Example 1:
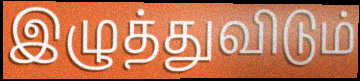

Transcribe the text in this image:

இழுத்துவிடும்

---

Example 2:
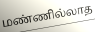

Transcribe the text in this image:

மண்ணில்லாத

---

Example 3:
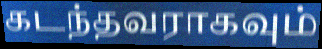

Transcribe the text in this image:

கடந்தவராகவும்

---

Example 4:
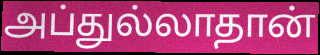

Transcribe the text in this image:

அப்துல்லாதான்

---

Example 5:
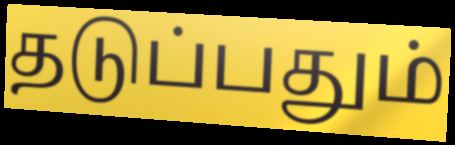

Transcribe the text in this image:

தடுப்பதும்